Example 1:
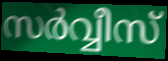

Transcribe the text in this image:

സർവ്വീസ്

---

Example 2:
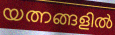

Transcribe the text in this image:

യത്നങ്ങളിൽ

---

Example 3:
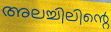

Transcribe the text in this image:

അലച്ചിലിന്റെ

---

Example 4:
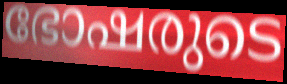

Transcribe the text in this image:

ഭോഷരുടെ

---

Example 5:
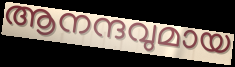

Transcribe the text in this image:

ആനന്ദവുമായ